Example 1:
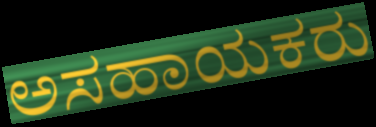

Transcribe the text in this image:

ಅಸಹಾಯಕರು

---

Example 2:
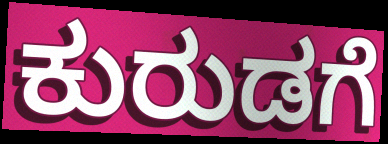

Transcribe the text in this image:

ಕುರುಡಗೆ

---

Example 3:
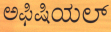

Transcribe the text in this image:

ಅಫಿಷಿಯಲ್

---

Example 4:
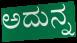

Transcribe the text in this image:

ಅದುನ್ನ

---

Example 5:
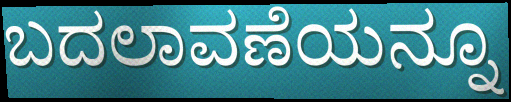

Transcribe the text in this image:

ಬದಲಾವಣೆಯನ್ನೂ